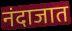
नंदाजात